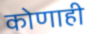
कोणाही